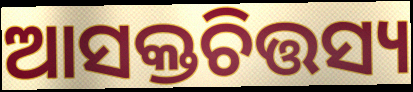
ଆସକ୍ତଚିତ୍ତସ୍ୟ